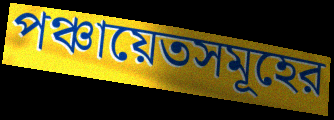
পঞ্চায়েতসমূহের